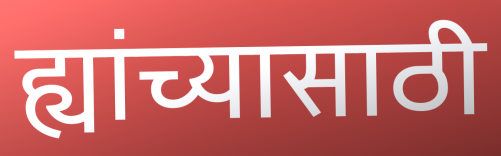
ह्यांच्यासाठी